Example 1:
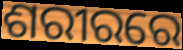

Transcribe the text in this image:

ଶରୀରରେ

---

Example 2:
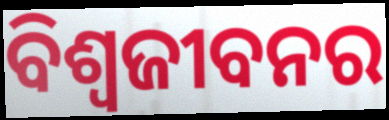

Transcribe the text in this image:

ବିଶ୍ଵଜୀବନର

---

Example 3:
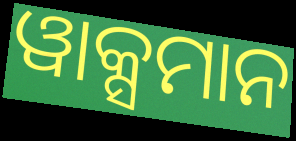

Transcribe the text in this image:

ୱାକ୍ସମାନ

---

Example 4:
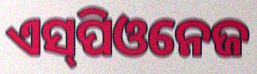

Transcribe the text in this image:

ଏସ୍‌ପିଓନେଜ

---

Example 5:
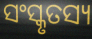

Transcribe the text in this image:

ସଂସ୍କୃତସ୍ୟ